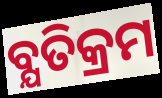
ବ୍ଯତିକ୍ରମ